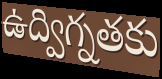
ఉద్విగ్నతకు